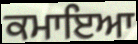
ਕਮਾਇਆ